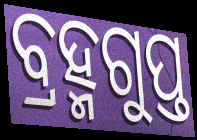
ବ୍ରହ୍ମଗୁପ୍ତ